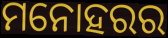
ମନୋହରର